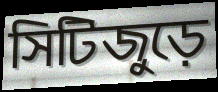
সিটিজুড়ে